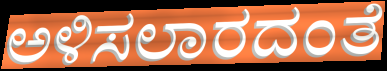
ಅಳಿಸಲಾರದಂತೆ